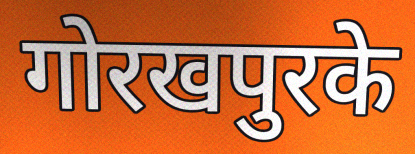
गोरखपुरके